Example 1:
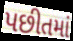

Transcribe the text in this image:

પછીતમાં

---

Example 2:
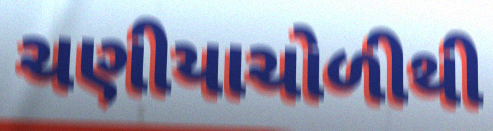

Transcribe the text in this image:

ચણીયાચોળીથી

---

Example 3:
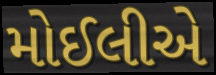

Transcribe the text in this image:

મોઈલીએ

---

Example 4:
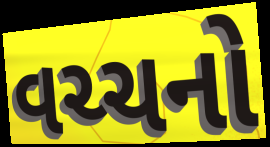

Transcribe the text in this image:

વચ્ચનો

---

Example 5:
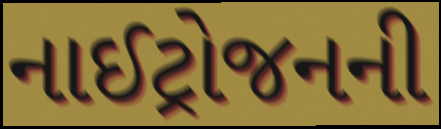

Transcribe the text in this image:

નાઈટ્રોજનની